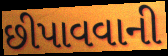
છીપાવવાની